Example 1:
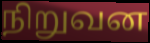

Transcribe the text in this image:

நிறுவன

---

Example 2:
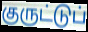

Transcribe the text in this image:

குருட்டுப்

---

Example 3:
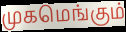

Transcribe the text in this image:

முகமெங்கும்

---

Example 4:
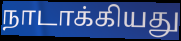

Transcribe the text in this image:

நாடாக்கியது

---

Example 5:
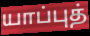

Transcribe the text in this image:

யாப்புத்